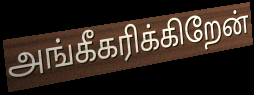
அங்கீகரிக்கிறேன்